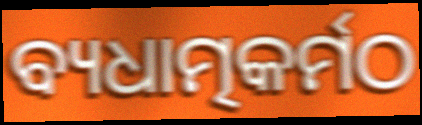
ବ୍ୟଧାତ୍ମକର୍ମଠ